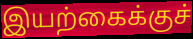
இயற்கைக்குச்